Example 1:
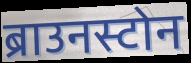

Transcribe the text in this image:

ब्राउनस्टोन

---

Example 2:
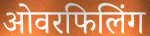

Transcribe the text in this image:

ओवरफिलिंग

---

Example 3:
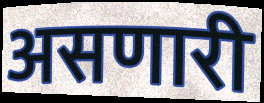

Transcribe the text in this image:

असणारी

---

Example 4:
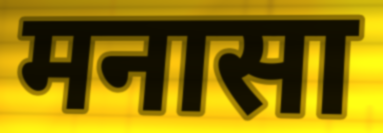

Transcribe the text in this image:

मनासा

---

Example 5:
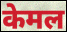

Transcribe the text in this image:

केमल